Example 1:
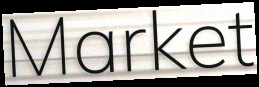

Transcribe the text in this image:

Market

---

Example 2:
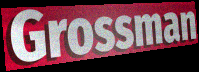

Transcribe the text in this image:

Grossman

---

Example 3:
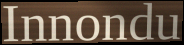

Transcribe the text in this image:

Innondu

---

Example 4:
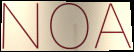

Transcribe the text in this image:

NOA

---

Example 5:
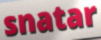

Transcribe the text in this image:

snatar